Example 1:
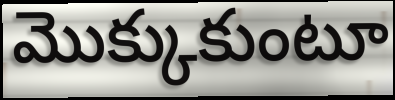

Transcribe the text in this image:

మొక్కుకుంటూ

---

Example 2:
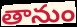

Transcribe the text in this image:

తానుం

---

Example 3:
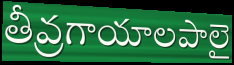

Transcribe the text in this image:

తీవ్రగాయాలపాలై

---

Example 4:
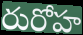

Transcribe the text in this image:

రురోహ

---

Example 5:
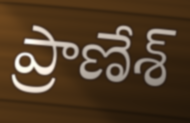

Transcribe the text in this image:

ప్రాణేశ్